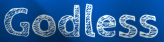
Godless